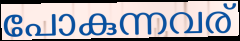
പോകുന്നവര്